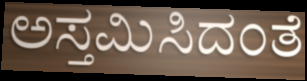
ಅಸ್ತಮಿಸಿದಂತೆ